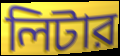
লিটার